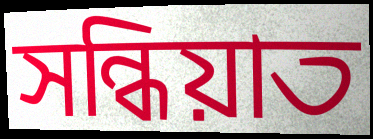
সন্ধিয়াত